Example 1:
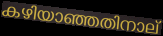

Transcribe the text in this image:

കഴിയാഞ്ഞതിനാല്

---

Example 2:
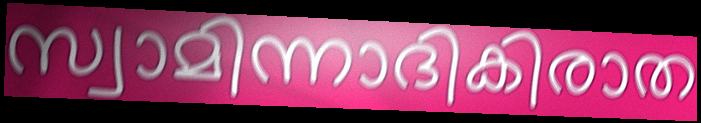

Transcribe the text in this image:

സ്വാമിന്നാദികിരാത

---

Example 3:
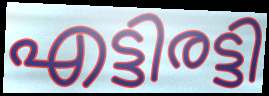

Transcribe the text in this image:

എട്ടിരട്ടി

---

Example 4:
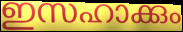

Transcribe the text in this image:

ഇസഹാക്കും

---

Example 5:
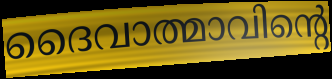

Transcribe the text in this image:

ദൈവാത്മാവിന്റെ